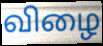
விழை